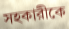
সহকারীকে